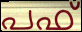
പഫ്